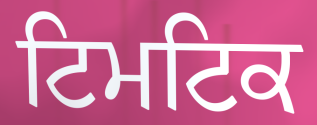
ਟਿਮਟਿਕ